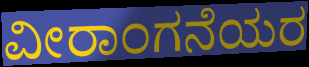
ವೀರಾಂಗನೆಯರ